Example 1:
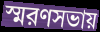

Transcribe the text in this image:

স্মরণসভায়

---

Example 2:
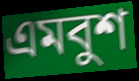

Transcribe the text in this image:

এমবুশ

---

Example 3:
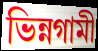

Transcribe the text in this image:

ভিন্নগামী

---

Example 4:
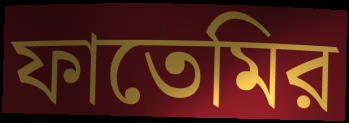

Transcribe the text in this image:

ফাতেমির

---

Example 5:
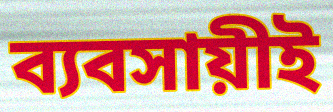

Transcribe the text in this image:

ব্যবসায়ীই